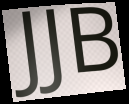
JJB